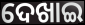
ଦେଖାଇ